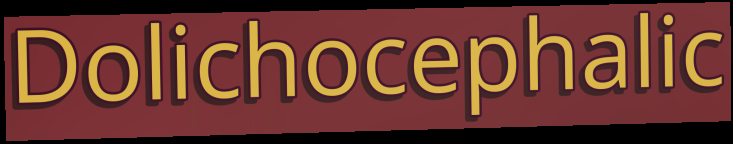
Dolichocephalic